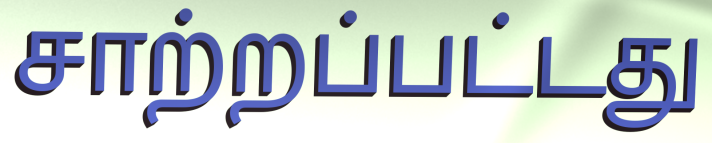
சாற்றப்பட்டது